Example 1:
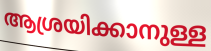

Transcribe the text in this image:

ആശ്രയിക്കാനുള്ള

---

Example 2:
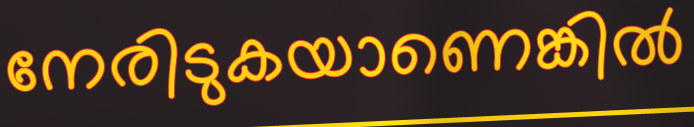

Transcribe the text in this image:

നേരിടുകയാണെങ്കിൽ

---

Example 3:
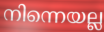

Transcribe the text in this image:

നിന്നെയല്ല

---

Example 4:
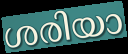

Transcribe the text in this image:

ശരിയാ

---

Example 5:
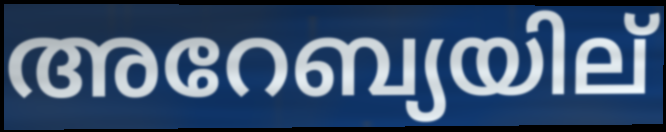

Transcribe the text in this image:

അറേബ്യയില്